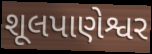
શૂલપાણેશ્વર